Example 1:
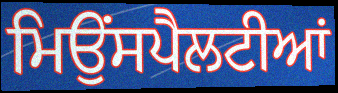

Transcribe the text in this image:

ਮਿਉਂਸਪੈਲਟੀਆਂ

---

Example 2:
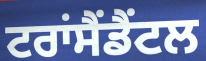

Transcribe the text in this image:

ਟਰਾਂਸੈਂਡੈਂਟਲ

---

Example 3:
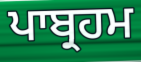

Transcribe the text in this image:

ਪਾਬ੍ਰਹਮ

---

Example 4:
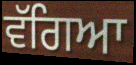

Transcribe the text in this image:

ਵੱਗਿਆ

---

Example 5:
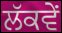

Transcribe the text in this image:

ਲੱਕਵੇਂ